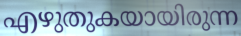
എഴുതുകയായിരുന്ന